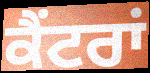
ਕੈਂਟਰਾਂ